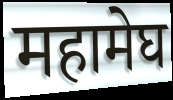
महामेघ